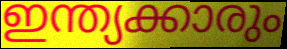
ഇന്ത്യക്കാരും